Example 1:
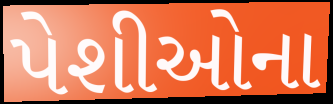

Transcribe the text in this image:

પેશીઓના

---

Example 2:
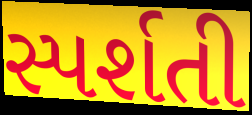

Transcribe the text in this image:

સ્પર્શતી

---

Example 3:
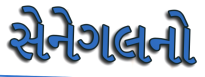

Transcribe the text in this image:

સેનેગલનો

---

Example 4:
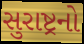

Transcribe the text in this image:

સુરાષ્ટ્રનો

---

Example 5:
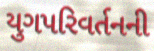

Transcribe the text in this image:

યુગપરિવર્તનની